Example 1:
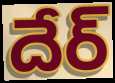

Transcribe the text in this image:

దేర్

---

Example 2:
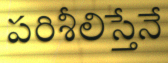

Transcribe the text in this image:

పరిశీలిస్తేనే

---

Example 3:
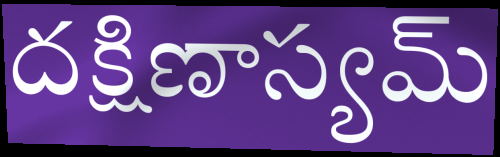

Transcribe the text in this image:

దక్షిణాస్యమ్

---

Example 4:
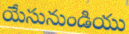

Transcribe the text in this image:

యేసునుండియు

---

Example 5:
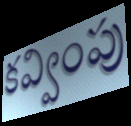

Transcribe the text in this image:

కవ్వింపు